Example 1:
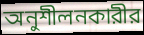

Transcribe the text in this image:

অনুশীলনকারীর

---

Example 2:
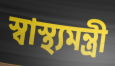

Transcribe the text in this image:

স্বাস্থ্যমন্ত্রী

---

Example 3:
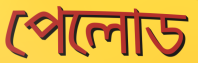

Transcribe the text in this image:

পেলোড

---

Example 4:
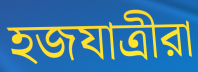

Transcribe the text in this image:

হজযাত্রীরা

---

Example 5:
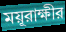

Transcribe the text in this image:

ময়ূরাক্ষীর